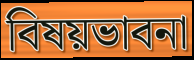
বিষয়ভাবনা